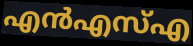
എൻഎസ്എ